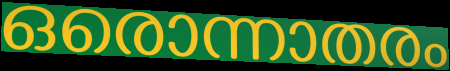
ഒരൊന്നാതരം